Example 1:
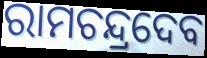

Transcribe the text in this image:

ରାମଚନ୍ଦ୍ରଦେବ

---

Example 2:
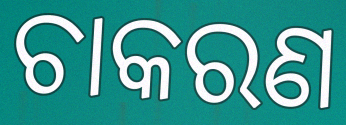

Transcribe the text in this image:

ଚାକରଣ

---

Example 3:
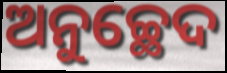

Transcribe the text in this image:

ଅନୁଚ୍ଛେଦ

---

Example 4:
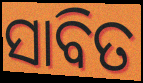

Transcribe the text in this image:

ସାବିତ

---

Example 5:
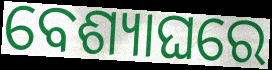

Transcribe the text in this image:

ବେଶ୍ୟାଘରେ